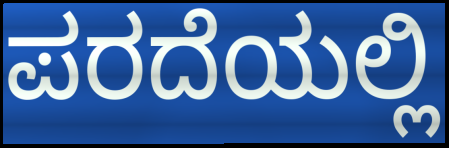
ಪರದೆಯಲ್ಲಿ